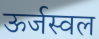
ऊर्जस्वल